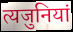
त्यजुनियां